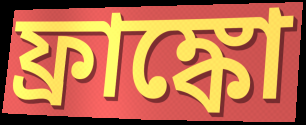
ফ্রাঙ্কো